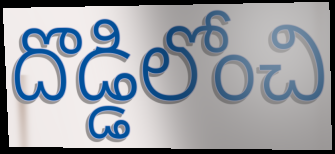
దొడ్డిలోంచి